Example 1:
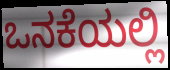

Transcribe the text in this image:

ಒನಕೆಯಲ್ಲಿ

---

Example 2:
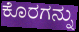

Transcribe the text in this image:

ಕೊರಗನ್ನು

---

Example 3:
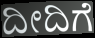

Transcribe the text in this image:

ದೀದಿಗೆ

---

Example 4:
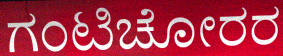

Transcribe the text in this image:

ಗಂಟಿಚೋರರ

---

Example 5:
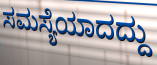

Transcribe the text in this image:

ಸಮಸ್ಯೆಯಾದದ್ದು